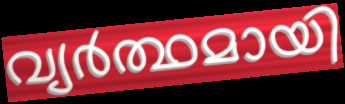
വ്യർത്ഥമായി